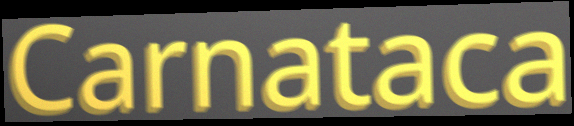
Carnataca